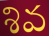
శివ